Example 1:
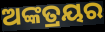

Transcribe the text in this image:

ଅଙ୍କତ୍ରୟର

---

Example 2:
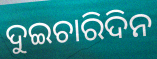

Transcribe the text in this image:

ଦୁଇଚାରିଦିନ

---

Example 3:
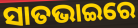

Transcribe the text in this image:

ସାତଭାଇରେ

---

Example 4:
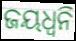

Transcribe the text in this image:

ଜୟଧ୍ୱନି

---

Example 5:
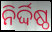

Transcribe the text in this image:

ନିର୍ଦ୍ଦିଷ୍ଠ